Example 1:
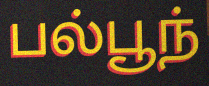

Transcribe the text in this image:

பல்பூந்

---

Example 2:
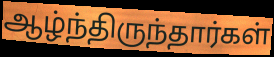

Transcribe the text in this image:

ஆழ்ந்திருந்தார்கள்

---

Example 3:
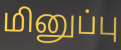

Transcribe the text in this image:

மினுப்பு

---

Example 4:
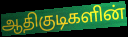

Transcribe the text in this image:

ஆதிகுடிகளின்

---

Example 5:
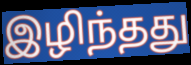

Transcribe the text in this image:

இழிந்தது